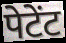
पेटेंट